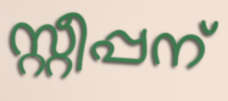
സ്റ്റീപ്പന്